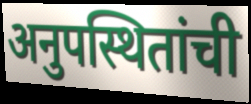
अनुपस्थितांची